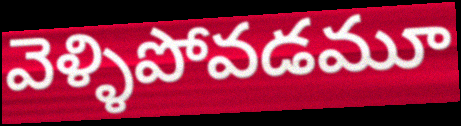
వెళ్ళిపోవడమూ